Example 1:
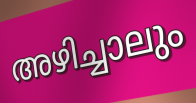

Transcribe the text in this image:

അഴിച്ചാലും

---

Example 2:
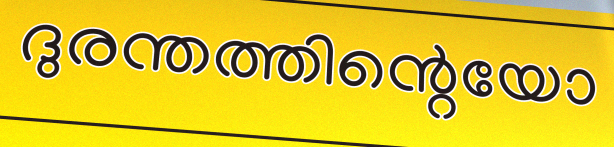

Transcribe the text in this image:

ദുരന്തത്തിന്റെയോ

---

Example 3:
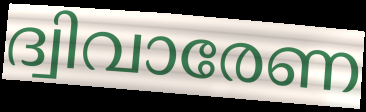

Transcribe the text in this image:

ദ്വിവാരേണ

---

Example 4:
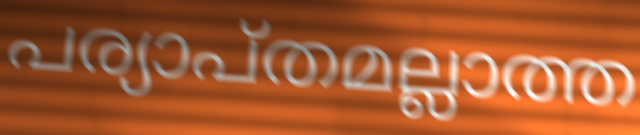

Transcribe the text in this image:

പര്യാപ്തമല്ലാത്ത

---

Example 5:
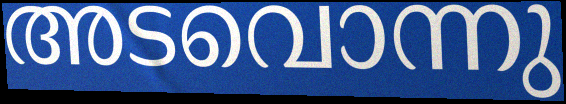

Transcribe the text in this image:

അടവൊന്നു